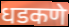
धडकणे